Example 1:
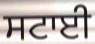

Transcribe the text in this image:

ਸਟਾਈ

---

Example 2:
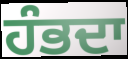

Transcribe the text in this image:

ਹੰਭਦਾ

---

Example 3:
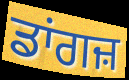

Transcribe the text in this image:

ਡਾਂਗਜ਼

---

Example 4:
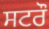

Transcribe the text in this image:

ਸਟਰੌ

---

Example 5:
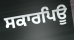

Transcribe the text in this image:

ਸਕਾਰਪਿਊ